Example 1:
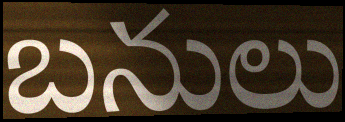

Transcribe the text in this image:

బనులు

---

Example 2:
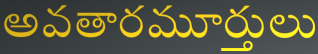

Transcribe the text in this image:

అవతారమూర్తులు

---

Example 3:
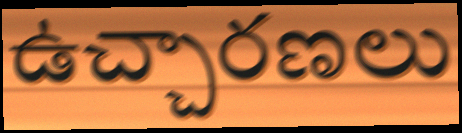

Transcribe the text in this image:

ఉచ్చారణలు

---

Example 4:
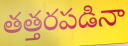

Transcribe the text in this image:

తత్తరపడినా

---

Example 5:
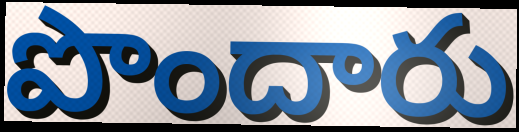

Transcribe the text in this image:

పొందారు